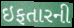
ઇફતારની